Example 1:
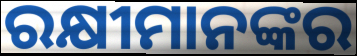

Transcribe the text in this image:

ରକ୍ଷୀମାନଙ୍କର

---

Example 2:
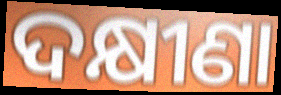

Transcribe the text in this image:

ଦକ୍ଷୀଣା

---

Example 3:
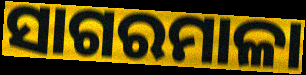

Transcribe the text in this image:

ସାଗରମାଳା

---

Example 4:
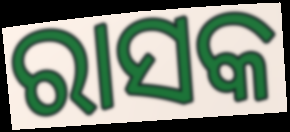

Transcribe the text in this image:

ରାସକ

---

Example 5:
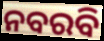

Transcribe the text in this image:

ନବରବି